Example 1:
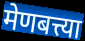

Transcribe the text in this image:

मेणबत्त्या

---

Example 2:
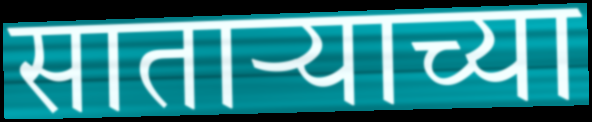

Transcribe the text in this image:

साताऱ्याच्या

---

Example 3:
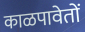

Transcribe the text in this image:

काळपावेतों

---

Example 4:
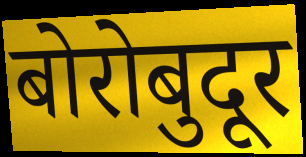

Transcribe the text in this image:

बोरोबुदूर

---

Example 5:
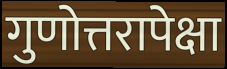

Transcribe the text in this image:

गुणोत्तरापेक्षा